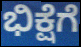
ಭಿಕ್ಷೆಗೆ